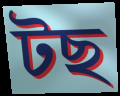
টছ